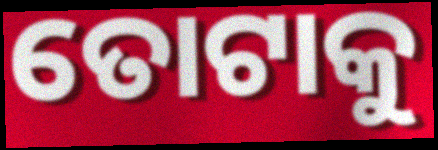
ତୋଟାକୁ